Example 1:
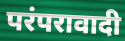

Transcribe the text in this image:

परंपरावादी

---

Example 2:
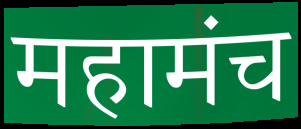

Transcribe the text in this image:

महामंच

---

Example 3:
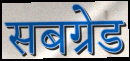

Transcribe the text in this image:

सबग्रेड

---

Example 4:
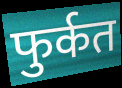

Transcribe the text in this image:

फुर्कत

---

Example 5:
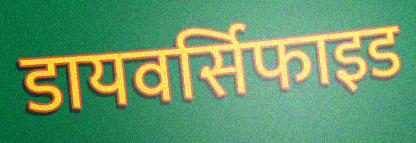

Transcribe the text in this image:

डायवर्सिफाइड